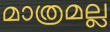
മാത്രമല്ല